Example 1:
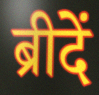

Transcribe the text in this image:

ब्रीदें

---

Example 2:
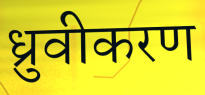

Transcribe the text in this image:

ध्रुवीकरण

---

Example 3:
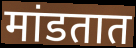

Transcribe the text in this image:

मांडतात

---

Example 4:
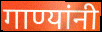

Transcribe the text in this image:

गाण्यांनी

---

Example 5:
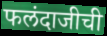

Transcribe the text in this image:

फलंदाजीची